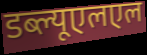
डब्ल्यूएलएल